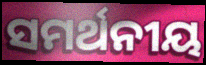
ସମର୍ଥନୀୟ